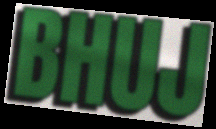
BHUJ